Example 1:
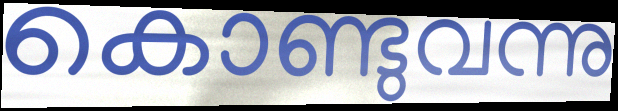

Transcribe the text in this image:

കൊണ്ടുവന്നു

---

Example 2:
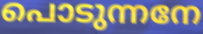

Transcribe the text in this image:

പൊടുന്നനേ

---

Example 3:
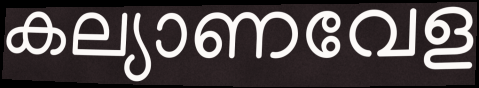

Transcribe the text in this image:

കല്യാണവേള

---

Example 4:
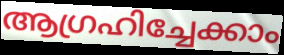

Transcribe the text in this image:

ആഗ്രഹിച്ചേക്കാം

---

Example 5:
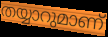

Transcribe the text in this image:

തയ്യാറുമാണ്